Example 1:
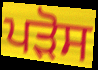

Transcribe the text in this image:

ਪੜੋਸ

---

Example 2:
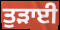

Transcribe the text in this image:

ਤੁੜਾਈ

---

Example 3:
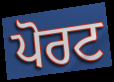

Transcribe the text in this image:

ਪੋਰਟ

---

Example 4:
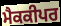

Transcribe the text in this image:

ਮੈਕਕੀਪਰ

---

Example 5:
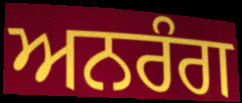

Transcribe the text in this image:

ਅਨਰੰਗ